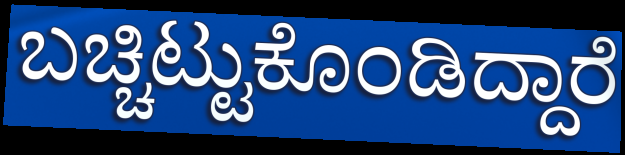
ಬಚ್ಚಿಟ್ಟುಕೊಂಡಿದ್ದಾರೆ